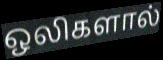
ஒலிகளால்